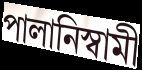
পালানিস্বামী